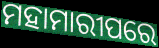
ମହାମାରୀପରେ